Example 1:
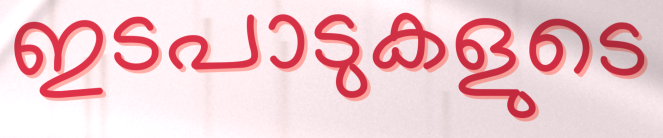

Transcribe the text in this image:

ഇടപാടുകളുടെ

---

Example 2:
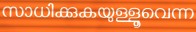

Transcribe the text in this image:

സാധിക്കുകയുള്ളൂവെന്ന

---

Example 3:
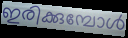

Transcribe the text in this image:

ഇരിക്കുമ്പോൾ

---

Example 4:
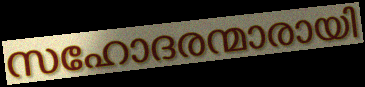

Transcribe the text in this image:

സഹോദരന്മാരായി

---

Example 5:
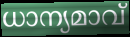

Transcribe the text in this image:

ധാന്യമാവ്